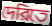
দেরিতে